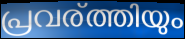
പ്രവര്ത്തിയും